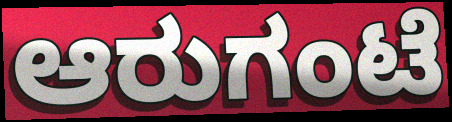
ಆರುಗಂಟೆ